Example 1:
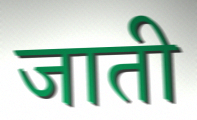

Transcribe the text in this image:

जाती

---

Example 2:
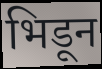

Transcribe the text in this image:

भिडून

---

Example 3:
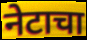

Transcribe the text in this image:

नेटाचा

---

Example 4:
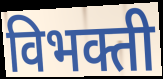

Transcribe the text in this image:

विभक्ती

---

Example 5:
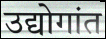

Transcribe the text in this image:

उद्योगांत